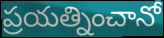
ప్రయత్నించానో